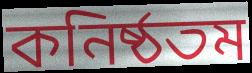
কনিষ্ঠতম